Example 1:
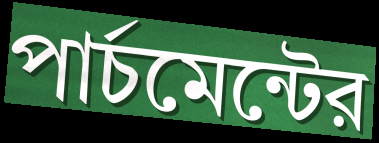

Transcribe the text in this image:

পার্চমেন্টের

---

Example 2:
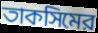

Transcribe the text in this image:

তাকসিমের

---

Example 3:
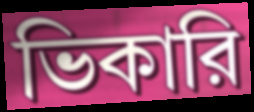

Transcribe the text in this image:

ভিকারি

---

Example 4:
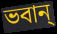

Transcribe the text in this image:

ভবান্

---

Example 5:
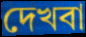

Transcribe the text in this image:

দেখবা